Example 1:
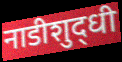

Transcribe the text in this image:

नाडीशुद्धी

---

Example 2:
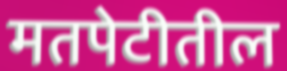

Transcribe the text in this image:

मतपेटीतील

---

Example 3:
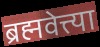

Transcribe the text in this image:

ब्रह्मवेत्त्या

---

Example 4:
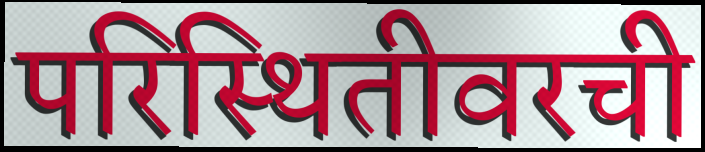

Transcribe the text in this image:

परिस्थितीवरची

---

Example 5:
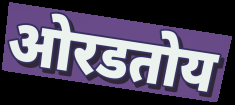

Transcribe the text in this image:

ओरडतोय